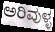
ಅರಿವುಳ್ಳ